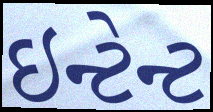
ઇન્ટેન્ટ